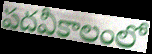
పదవీకాలంలో